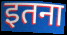
इतना